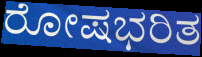
ರೋಷಭರಿತ